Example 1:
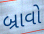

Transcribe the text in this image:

બ્રાવો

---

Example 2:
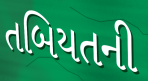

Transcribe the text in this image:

તબિયતની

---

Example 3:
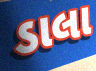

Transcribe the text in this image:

ડાલા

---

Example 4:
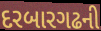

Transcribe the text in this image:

દરબારગઢની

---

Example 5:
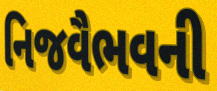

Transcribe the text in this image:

નિજવૈભવની